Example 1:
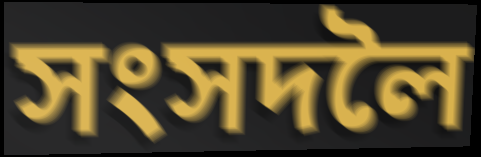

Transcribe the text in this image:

সংসদলৈ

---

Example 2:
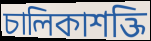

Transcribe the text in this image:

চালিকাশক্তি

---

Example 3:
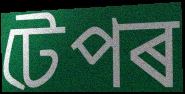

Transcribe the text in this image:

টেপৰ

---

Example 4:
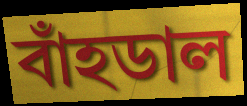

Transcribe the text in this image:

বাঁহডাল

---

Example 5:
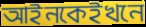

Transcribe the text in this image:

আইনকেইখনে